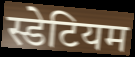
स्डेटियम